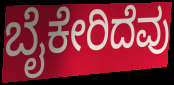
ಬೈಕೇರಿದೆವು